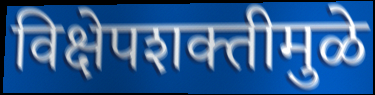
विक्षेपशक्तीमुळे